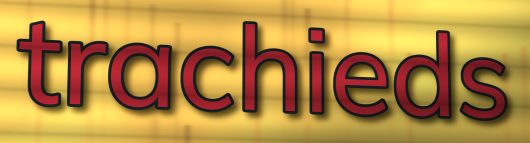
trachieds